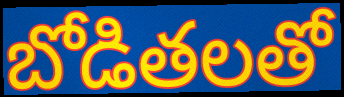
బోడితలతో